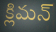
క్లిమన్